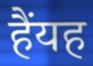
हैंयह